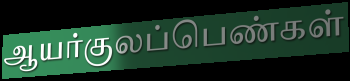
ஆயர்குலப்பெண்கள்